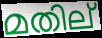
മതില്